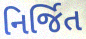
નિર્જિત